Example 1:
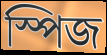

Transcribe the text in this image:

স্পিজ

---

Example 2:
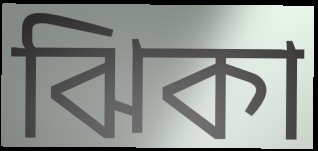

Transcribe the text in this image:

ঝিকা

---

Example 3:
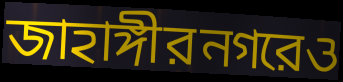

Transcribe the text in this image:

জাহাঙ্গীরনগরেও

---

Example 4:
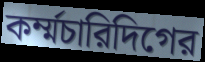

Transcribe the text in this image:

কর্ম্মচারিদিগের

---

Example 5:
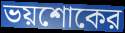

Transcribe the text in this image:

ভয়শোকের